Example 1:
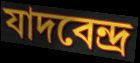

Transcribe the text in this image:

যাদবেন্দ্র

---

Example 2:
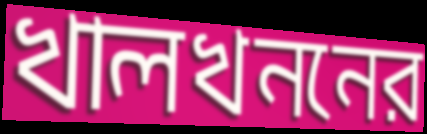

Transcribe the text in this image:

খালখননের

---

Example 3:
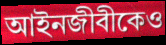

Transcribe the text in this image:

আইনজীবীকেও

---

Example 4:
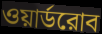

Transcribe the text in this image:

ওয়ার্ডরোব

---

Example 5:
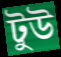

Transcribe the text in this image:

টুউ